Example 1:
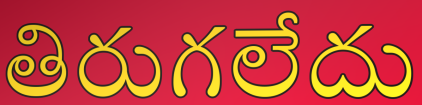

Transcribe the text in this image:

తిరుగలేదు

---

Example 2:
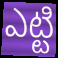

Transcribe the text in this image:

ఎట్టి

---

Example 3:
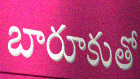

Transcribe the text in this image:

బారూకుతో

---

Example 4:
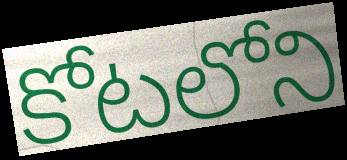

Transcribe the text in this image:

కోటలోని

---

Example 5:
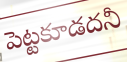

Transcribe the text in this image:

పెట్టకూడదనీ